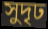
সুদৃঢ